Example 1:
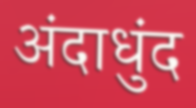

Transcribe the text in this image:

अंदाधुंद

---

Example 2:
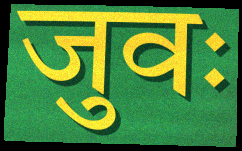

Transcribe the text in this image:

जुवः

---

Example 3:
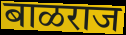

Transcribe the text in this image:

बाळराज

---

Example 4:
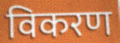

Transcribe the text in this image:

विकरण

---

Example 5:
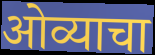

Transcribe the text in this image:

ओव्याचा